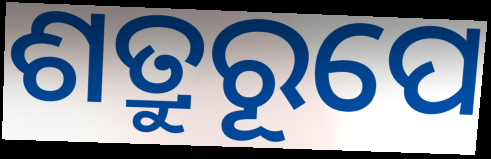
ଶତ୍ରୁରୂପେ